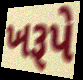
ખરૂપે